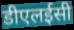
डीएलईसी